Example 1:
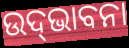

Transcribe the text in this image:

ଉଦ୍‍ଭାବନା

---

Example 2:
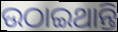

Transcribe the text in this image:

ଉଠାଇଥାନ୍ତି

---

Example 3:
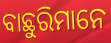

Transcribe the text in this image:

ବାଛୁରିମାନେ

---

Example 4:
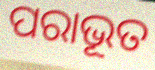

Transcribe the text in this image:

ପରାଭୂତ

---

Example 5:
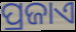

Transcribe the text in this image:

ପ୍ରଜାଏ